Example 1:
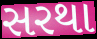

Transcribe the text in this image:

સરથા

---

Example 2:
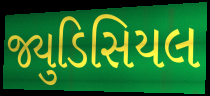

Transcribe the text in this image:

જ્યુડિસિયલ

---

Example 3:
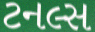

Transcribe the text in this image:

ટનલ્સ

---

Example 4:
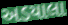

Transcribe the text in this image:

અડયાલા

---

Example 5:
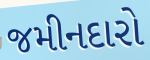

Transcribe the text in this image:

જમીનદારો